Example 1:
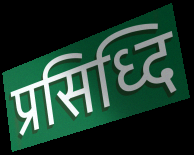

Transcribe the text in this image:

प्रसिध्दि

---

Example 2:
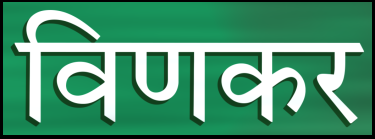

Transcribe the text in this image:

विणकर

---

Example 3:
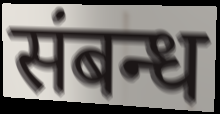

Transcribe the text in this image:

संबन्ध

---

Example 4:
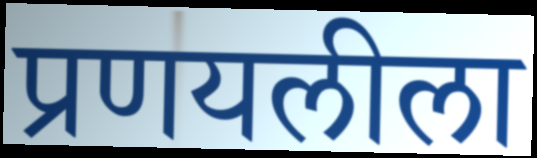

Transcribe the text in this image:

प्रणयलीला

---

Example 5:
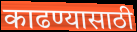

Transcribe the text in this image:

काढण्यासाठी